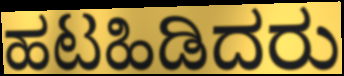
ಹಟಹಿಡಿದರು